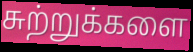
சுற்றுக்களை